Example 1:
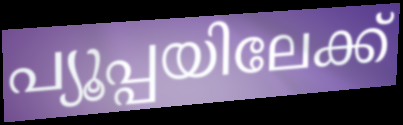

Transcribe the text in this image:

പ്യൂപ്പയിലേക്ക്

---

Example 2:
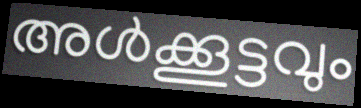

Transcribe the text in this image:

അൾക്കൂട്ടവും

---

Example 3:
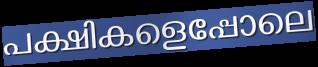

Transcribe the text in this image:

പക്ഷികളെപ്പോലെ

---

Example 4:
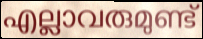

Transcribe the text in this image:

എല്ലാവരുമുണ്ട്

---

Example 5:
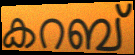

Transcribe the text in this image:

കറബ്